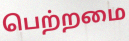
பெற்றமை